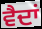
ਵੈਦਾਂ